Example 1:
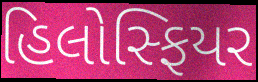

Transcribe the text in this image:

હિલોસ્ફિયર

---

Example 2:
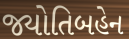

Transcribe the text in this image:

જ્યોતિબહેન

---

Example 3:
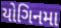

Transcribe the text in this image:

યોગિનમા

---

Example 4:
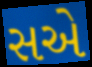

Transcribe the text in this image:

સએ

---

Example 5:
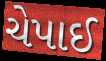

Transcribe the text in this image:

ચેપાઈ